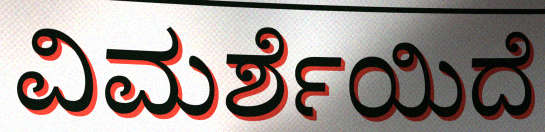
ವಿಮರ್ಶೆಯಿದೆ